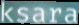
ksara